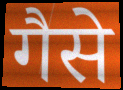
गैसे